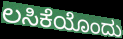
ಲಸಿಕೆಯೊಂದು